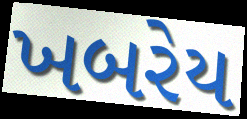
ખબરેય